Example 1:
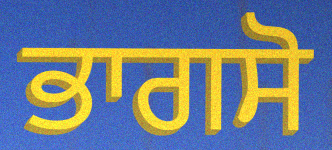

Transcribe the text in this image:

ਭਾਗਸੋ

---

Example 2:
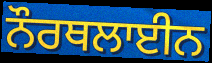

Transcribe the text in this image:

ਨੌਰਥਲਾਈਨ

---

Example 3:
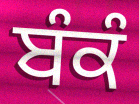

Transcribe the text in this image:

ਬੰਕੰ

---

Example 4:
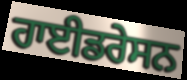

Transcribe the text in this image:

ਹਾਈਡਰੇਸਨ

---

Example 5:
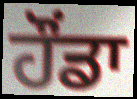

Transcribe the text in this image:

ਹੌਂਡਾ